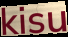
kisu